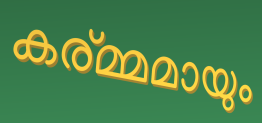
കര്മ്മമായും